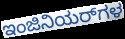
ಇಂಜಿನಿಯರ್‌ಗಳ